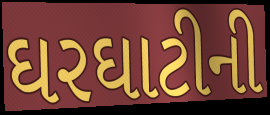
ઘરઘાટીની